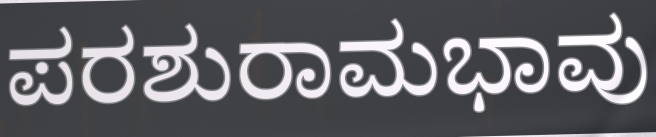
ಪರಶುರಾಮಭಾವು